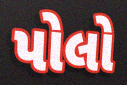
પોલો